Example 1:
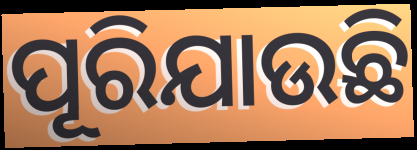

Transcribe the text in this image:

ପୂରିଯାଉଛି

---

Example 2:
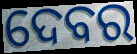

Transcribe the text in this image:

ଦେବର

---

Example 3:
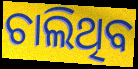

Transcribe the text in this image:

ଚାଲିଥିବ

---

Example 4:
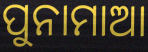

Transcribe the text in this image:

ପୁନାମାଆ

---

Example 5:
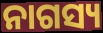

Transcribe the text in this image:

ନାଗସ୍ୟ